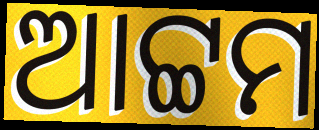
ଆଟ୍ଟମ